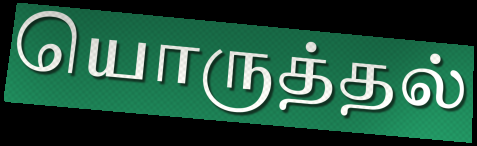
யொருத்தல்